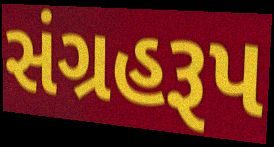
સંગ્રહરૂપ